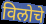
विलोचे